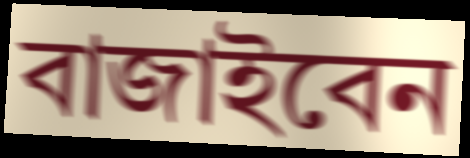
বাজাইবেন